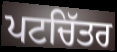
ਪਟਚਿੱਤਰ